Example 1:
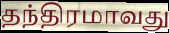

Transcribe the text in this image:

தந்திரமாவது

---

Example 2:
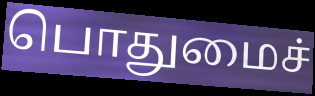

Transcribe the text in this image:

பொதுமைச்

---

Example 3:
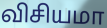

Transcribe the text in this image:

விசியமா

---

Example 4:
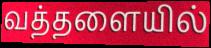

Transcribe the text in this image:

வத்தளையில்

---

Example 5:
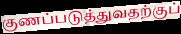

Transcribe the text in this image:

குணப்படுத்துவதற்குப்